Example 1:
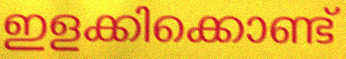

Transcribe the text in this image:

ഇളക്കിക്കൊണ്ട്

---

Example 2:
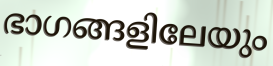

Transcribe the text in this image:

ഭാഗങ്ങളിലേയും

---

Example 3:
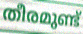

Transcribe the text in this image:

തീരമുണ്ട്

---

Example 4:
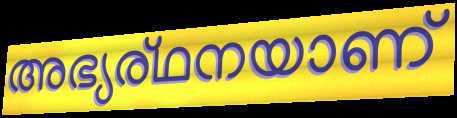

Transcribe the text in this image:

അഭ്യര്ഥനയാണ്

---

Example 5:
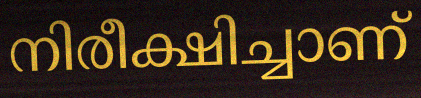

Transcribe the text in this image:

നിരീക്ഷിച്ചാണ്